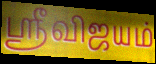
ஸ்ரீவிஜயம்